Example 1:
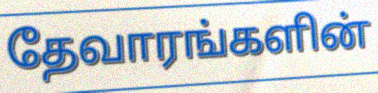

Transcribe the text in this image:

தேவாரங்களின்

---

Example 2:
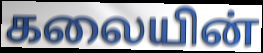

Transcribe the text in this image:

கலையின்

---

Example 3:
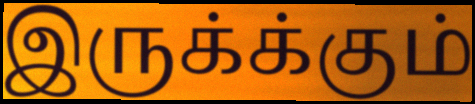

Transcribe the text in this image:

இருக்க்கும்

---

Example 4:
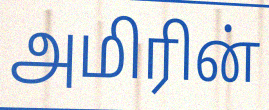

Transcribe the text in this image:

அமிரின்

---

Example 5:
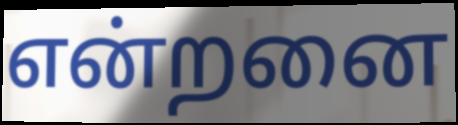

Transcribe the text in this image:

என்றனை